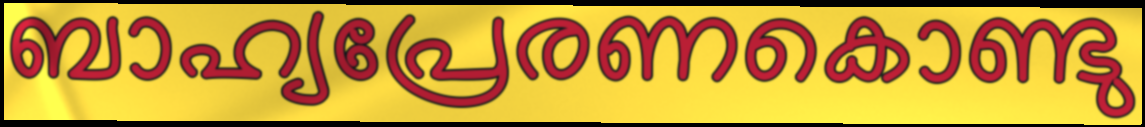
ബാഹ്യപ്രേരണകൊണ്ടു